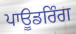
ਪਾਊਡਰਿੰਗ